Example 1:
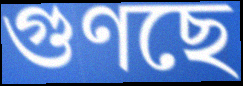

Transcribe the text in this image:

গুণছে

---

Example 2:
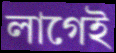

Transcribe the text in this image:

লাগেই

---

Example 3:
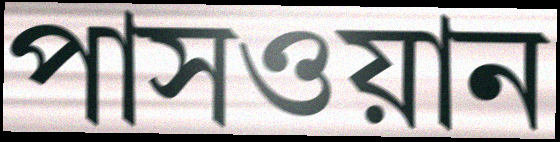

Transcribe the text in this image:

পাসওয়ান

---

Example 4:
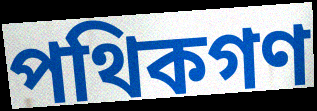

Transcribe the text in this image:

পথিকগণ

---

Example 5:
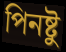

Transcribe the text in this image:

পিনষ্টু